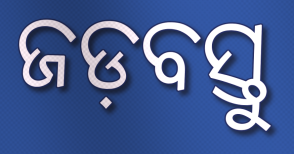
ଜଡ଼ବସ୍ତୁ